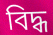
বিদ্ধ